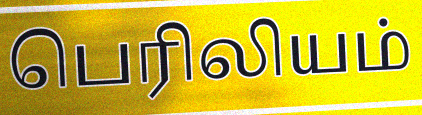
பெரிலியம்